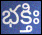
భక్తిః